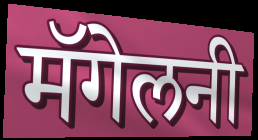
मॅगेलनी